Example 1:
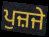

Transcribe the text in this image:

ਪੁਜ਼ਜੇ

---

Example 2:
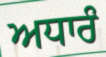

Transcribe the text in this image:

ਅਧਾਰੰ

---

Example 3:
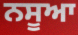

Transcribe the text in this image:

ਨਸੂਆ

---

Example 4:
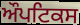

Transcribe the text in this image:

ਔਪਟਿਕਸ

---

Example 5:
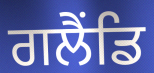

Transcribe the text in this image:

ਗਲੈਂਡਿ